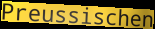
Preussischen